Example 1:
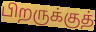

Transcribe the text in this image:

பிறருக்குத்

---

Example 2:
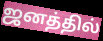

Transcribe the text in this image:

ஜனத்தில்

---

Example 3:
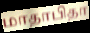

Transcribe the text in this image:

மாதாபிதா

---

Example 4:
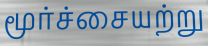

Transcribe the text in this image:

மூர்ச்சையற்று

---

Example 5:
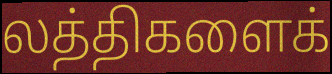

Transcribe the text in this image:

லத்திகளைக்